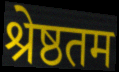
श्रेष्ठतम